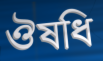
ঔষধি